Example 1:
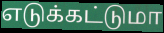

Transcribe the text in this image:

எடுக்கட்டுமா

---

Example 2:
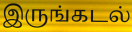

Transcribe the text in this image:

இருங்கடல்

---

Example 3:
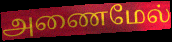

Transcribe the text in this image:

அணைமேல்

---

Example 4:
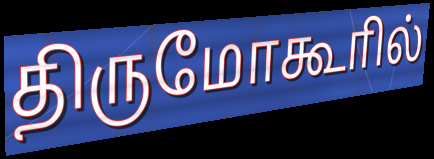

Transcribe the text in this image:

திருமோகூரில்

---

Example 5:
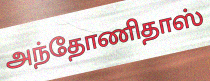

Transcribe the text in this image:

அந்தோணிதாஸ்